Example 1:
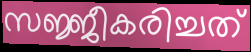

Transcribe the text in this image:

സജ്ജീകരിച്ചത്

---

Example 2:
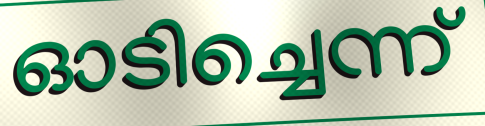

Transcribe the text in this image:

ഓടിച്ചെന്ന്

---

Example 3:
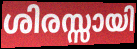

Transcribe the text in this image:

ശിരസ്സായി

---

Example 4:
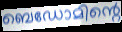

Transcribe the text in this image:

ബെഡോമിന്റെ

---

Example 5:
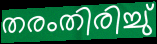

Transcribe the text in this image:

തരംതിരിച്ചു്